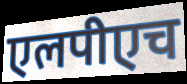
एलपीएच